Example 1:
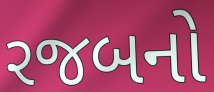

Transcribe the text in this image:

રજબનો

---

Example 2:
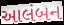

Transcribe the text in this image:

આલંબન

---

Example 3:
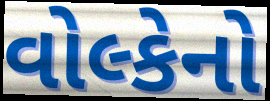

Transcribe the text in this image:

વોલ્કેનો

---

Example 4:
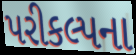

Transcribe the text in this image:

પરીકલ્પના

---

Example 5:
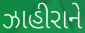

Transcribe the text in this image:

ઝાહીરાને